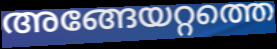
അങ്ങേയറ്റത്തെ